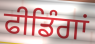
ਫੀਡਿੰਗਾਂ